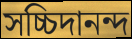
সচ্চিদানন্দ